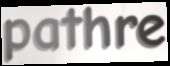
pathre